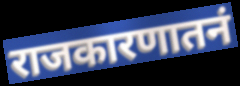
राजकारणातनं